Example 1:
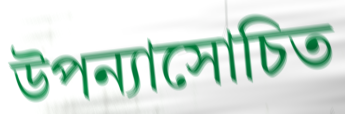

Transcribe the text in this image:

উপন্যাসোচিত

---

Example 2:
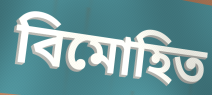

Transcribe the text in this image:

বিমোহিত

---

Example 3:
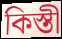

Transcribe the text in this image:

কিস্তী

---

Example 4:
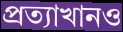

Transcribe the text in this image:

প্রত্যাখানও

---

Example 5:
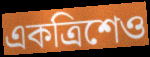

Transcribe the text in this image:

একত্রিশেও